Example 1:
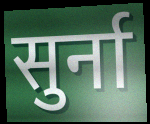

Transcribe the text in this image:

सुर्ना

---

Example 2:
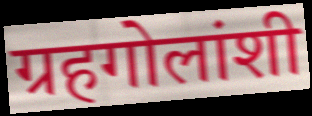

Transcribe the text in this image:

ग्रहगोलांशी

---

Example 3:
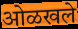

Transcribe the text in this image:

ओळखले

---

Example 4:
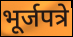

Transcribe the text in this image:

भूर्जपत्रे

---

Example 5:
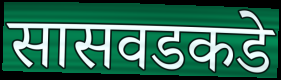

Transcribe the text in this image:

सासवडकडे